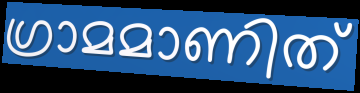
ഗ്രാമമാണിത്